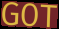
GOT